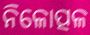
ନିଳୋତ୍ପଳ